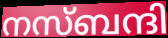
നസ്ബന്ദി